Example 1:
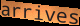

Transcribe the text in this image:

arrives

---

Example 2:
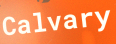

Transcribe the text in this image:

Calvary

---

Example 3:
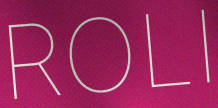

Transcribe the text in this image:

ROLI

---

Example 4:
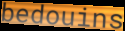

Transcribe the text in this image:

bedouins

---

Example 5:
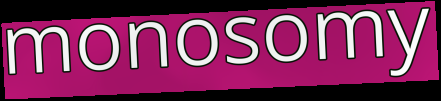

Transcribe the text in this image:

monosomy